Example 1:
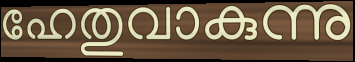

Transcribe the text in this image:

ഹേതുവാകുന്നു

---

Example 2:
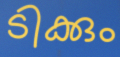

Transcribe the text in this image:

ടിക്കും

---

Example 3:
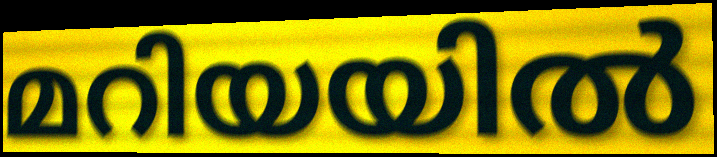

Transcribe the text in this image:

മറിയയിൽ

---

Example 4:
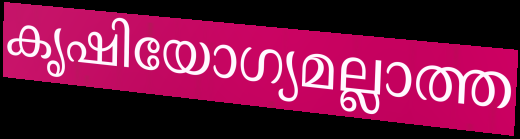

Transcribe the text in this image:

കൃഷിയോഗ്യമല്ലാത്ത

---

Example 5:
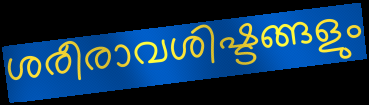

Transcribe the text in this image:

ശരീരാവശിഷ്ടങ്ങളും